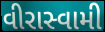
વીરાસ્વામી